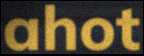
ahot